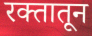
रक्तातून